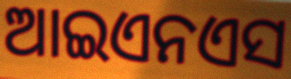
ଆଇଏନଏସ